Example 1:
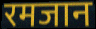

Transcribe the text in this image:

रमजान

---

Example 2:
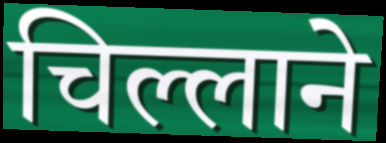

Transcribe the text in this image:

चिल्लाने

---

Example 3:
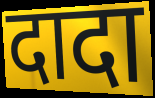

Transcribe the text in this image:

दादा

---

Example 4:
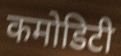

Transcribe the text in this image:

कमोडिटी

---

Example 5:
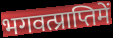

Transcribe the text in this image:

भगवत्प्राप्तिमें